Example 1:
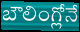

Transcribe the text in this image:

బౌలింగ్లోనే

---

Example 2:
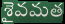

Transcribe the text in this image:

శైవమత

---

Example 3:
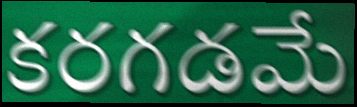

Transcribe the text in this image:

కరగడమే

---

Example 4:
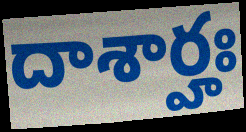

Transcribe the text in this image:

దాశార్హః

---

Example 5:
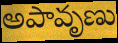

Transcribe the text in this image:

అపావృణు